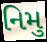
નિમુ